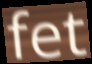
fet